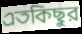
এতকিছুর